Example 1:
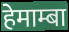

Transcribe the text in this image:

हेमाम्बा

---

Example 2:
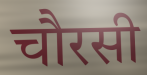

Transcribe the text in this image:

चौरसी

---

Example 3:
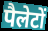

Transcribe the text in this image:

पैलेटों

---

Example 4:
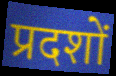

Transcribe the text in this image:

प्रदशों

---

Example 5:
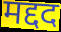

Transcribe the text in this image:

मद्दद